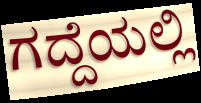
ಗದ್ದೆಯಲ್ಲಿ